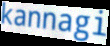
kannagi